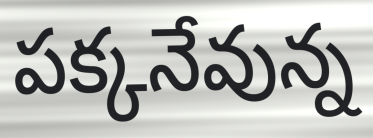
పక్కనేవున్న